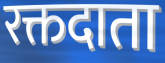
रक्तदाता